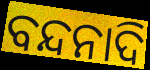
ବନ୍ଦନାଦି